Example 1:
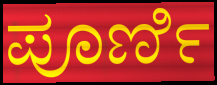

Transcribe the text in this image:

ಪೂರ್ಣಿ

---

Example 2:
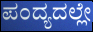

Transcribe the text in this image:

ಪಂದ್ಯದಲ್ಲೇ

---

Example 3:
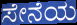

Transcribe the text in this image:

ಸೇನೆಯ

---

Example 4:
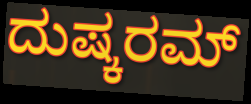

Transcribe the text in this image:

ದುಷ್ಕರಮ್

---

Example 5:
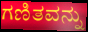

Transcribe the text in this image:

ಗಣಿತವನ್ನು